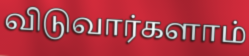
விடுவார்களாம்